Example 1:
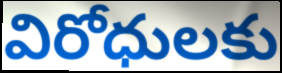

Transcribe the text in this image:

విరోధులకు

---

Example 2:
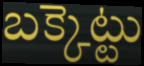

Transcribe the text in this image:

బక్కెట్టు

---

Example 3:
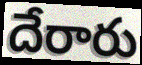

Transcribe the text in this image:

దేరారు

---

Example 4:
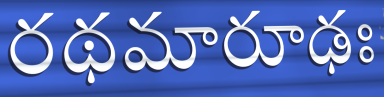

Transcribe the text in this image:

రథమారూఢః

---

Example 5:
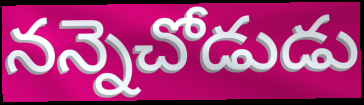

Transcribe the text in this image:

నన్నెచోడుడు